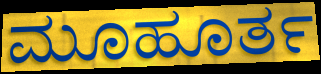
ಮೂಹೂರ್ತ